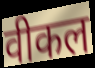
वीकल